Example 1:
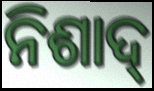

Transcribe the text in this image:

ନିଶାଦ୍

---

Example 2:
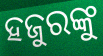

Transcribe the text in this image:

ହଜୁରଙ୍କୁ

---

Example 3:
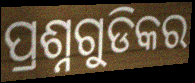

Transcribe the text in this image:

ପ୍ରଶ୍ନଗୁଡିକର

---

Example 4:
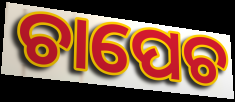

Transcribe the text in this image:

ଚାପେଚ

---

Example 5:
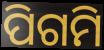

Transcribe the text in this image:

ପିଗମି